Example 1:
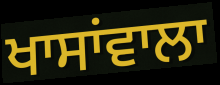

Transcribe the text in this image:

ਖਾਸਾਂਵਾਲਾ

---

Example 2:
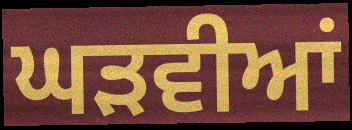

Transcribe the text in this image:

ਘੜਵੀਆਂ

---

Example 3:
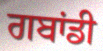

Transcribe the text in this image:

ਗਬਾਂਡੀ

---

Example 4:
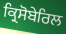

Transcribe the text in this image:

ਕ੍ਰਿਸੋਬੇਰਿਲ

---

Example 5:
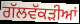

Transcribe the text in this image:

ਗੱਲਵੱਕੜੀਆਂ